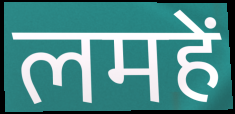
लमहें